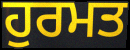
ਹੁਰਮਤ